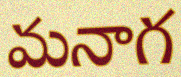
మనాగ